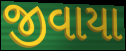
જીવાયા